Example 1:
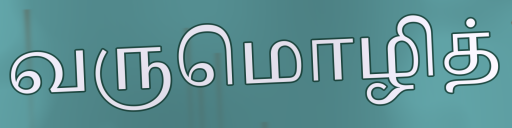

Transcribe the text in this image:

வருமொழித்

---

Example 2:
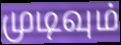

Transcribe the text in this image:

முடிவும்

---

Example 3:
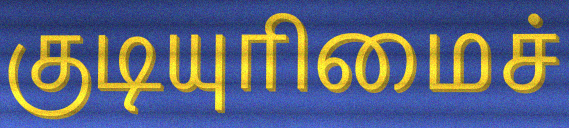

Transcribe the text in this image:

குடியுரிமைச்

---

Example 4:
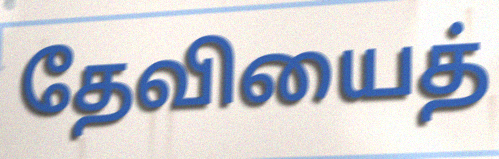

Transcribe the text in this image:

தேவியைத்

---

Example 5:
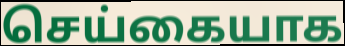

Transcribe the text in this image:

செய்கையாக